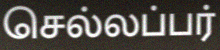
செல்லப்பர்